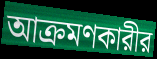
আক্রমণকারীর